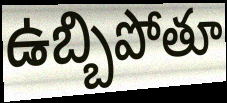
ఉబ్బిపోతూ